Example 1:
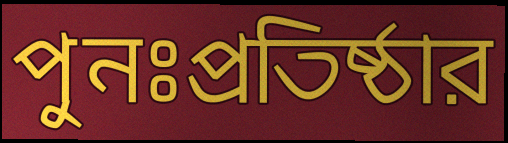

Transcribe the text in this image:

পুনঃপ্রতিষ্ঠার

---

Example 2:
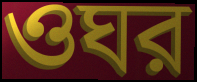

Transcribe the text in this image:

ওঘর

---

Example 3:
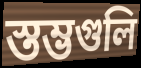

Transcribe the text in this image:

স্তম্ভগুলি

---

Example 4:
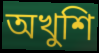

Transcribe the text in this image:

অখুশি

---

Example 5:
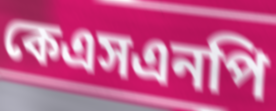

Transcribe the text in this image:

কেএসএনপি